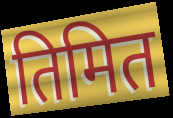
तिमित